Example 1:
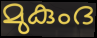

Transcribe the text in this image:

മുകുംദ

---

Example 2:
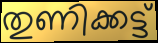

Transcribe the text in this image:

തുണിക്കട്ട്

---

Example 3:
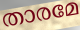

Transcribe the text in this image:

താരമേ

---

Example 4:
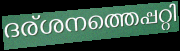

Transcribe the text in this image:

ദര്ശനത്തെപ്പറ്റി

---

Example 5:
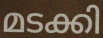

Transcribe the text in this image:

മടക്കി